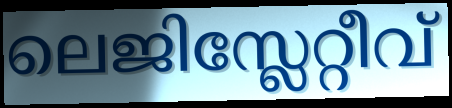
ലെജിസ്ലേറ്റീവ്